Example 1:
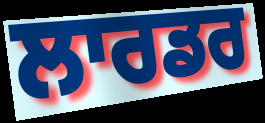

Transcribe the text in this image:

ਲਾਰਡਰ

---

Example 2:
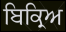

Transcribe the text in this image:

ਬਿਕ੍ਰਿਅ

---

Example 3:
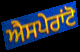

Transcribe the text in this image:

ਐਸਪੇਰਾਂਟੋ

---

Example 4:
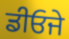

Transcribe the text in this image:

ਡੀਓਜੇ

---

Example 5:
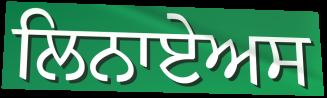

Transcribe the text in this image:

ਲਿਨਾਏਅਸ